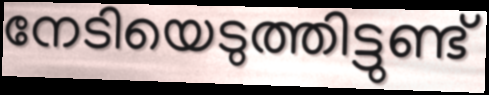
നേടിയെടുത്തിട്ടുണ്ട്